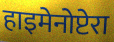
हाइमेनोप्टेरा